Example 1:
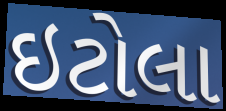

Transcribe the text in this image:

ઇટોલા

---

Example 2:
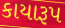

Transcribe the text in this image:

કાયારૂપ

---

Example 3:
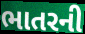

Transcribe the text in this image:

ભાતરની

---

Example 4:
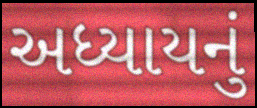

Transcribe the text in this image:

અધ્યાયનું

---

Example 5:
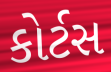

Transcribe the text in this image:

કોર્ટસ